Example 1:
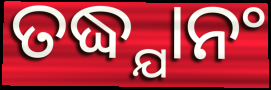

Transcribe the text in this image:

ତଦ୍ଧ୍ଯାନଂ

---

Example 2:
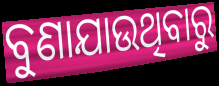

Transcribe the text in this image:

ବୁଣାଯାଉଥିବାରୁ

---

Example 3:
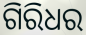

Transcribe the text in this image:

ଗିରିଧର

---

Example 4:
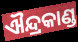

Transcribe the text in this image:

ଐନ୍ଦ୍ରକାଣ୍ଡ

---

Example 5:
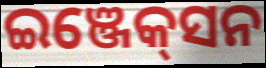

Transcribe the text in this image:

ଇଞ୍ଜେକ୍‌ସନ